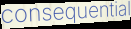
consequential